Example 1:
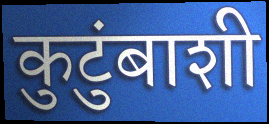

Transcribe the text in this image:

कुटुंबाशी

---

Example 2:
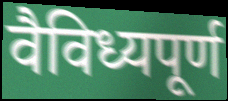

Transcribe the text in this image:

वैविध्यपूर्ण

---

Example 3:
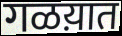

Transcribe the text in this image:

गळय़ात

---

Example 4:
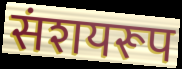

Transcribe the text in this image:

संशयरूप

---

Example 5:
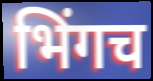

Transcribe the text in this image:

भिंगच